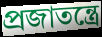
প্রজাতন্ত্রে